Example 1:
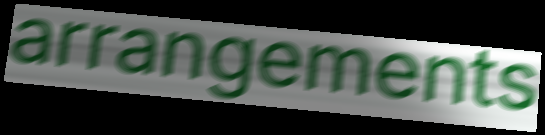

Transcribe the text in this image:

arrangements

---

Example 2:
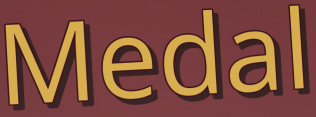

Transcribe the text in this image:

Medal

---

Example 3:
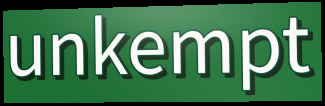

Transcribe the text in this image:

unkempt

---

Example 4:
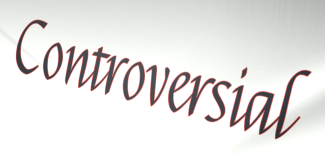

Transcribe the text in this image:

Controversial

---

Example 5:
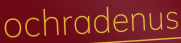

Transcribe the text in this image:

ochradenus